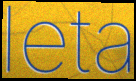
leta